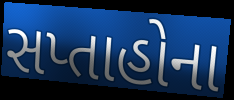
સપ્તાહોના